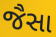
જૈસા